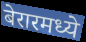
बेरारमध्ये